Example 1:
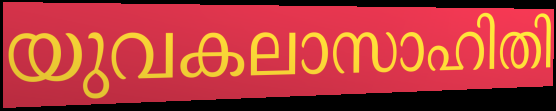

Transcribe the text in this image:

യുവകലാസാഹിതി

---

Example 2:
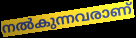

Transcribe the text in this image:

നൽകുന്നവരാണ്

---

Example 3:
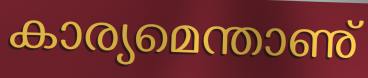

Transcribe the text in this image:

കാര്യമെന്താണു്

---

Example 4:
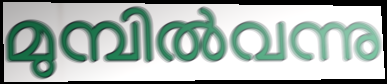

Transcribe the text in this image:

മുമ്പിൽവന്നു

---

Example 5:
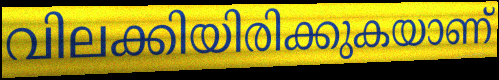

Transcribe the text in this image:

വിലക്കിയിരിക്കുകയാണ്